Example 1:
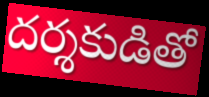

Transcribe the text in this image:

దర్శకుడితో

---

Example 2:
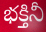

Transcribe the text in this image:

భక్తినీ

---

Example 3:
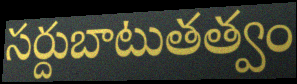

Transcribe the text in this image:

సర్దుబాటుతత్వం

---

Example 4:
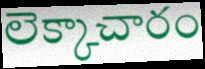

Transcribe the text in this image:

లెక్కాచారం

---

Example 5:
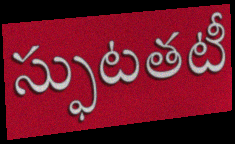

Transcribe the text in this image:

స్ఫుటతటీ